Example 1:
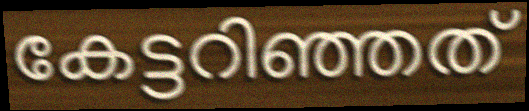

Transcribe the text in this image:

കേട്ടറിഞ്ഞത്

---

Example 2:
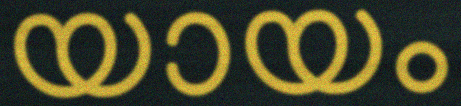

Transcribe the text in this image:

യായം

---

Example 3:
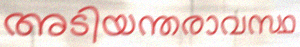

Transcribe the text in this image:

അടിയന്തരാവസ്ഥ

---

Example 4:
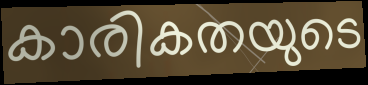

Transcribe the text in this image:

കാരികതയുടെ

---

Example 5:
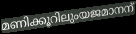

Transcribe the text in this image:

മണിക്കൂറിലുംയജമാനന്